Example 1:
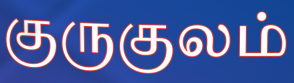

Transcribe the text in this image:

குருகுலம்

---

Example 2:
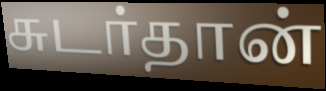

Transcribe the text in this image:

சுடர்தான்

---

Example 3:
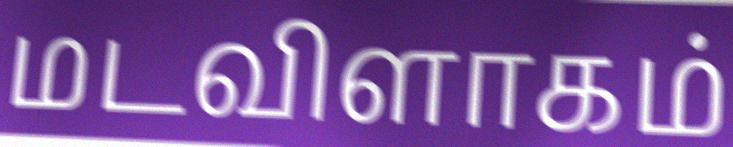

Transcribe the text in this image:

மடவிளாகம்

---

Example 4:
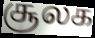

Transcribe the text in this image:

சூலக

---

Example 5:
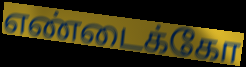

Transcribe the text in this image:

எண்டைக்கோ